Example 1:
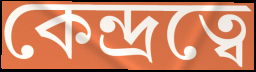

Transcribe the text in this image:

কেন্দ্রত্বে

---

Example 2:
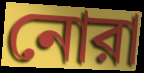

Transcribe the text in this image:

নোরা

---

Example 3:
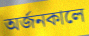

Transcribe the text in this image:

অর্জনকালে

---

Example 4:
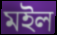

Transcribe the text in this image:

মইল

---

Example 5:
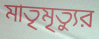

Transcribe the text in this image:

মাতৃমৃত্যুর